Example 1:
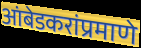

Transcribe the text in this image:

आंबेडकरांप्रमाणे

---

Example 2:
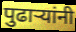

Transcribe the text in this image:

पुढाऱ्यांनी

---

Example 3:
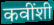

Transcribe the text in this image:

कवींशी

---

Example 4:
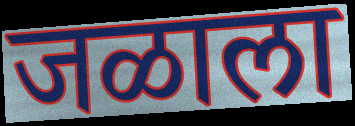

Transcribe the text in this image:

जळाला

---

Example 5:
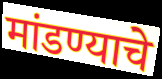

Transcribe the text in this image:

मांडण्याचे